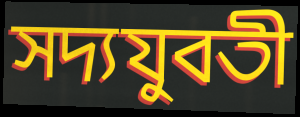
সদ্যযুবতী